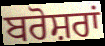
ਬਰੋਸ਼ਰਾਂ